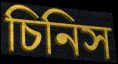
চিনিস